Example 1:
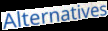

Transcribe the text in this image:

Alternatives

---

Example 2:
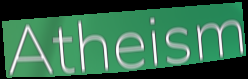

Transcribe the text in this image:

Atheism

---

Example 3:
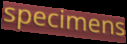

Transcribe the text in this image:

specimens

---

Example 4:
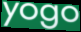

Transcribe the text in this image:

yogo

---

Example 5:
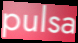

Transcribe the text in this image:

pulsa